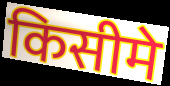
किसीमे